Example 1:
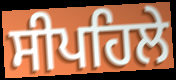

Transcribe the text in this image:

ਸੀਪਹਿਲੇ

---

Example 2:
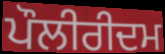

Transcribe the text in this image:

ਪੌਲੀਰੀਦਮ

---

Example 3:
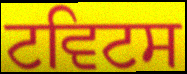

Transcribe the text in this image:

ਟਵਿਟਸ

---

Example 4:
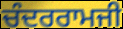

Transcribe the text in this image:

ਚੰਦਰਰਾਮਜੀ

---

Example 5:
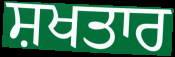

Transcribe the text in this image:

ਸ਼ਖਤਾਰ